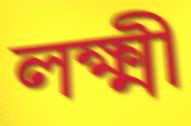
লক্ষ্মী